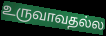
உருவாவதல்ல